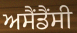
ਅਸੈਂਡੈਂਸੀ